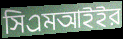
সিএমআইইর